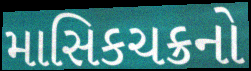
માસિકચક્રનો